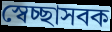
স্বেচ্ছাসবক